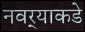
नवर्याकडे